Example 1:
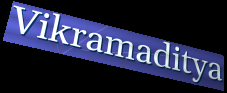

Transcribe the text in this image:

Vikramaditya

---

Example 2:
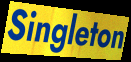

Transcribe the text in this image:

Singleton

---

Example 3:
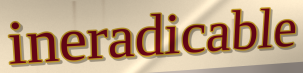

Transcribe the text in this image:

ineradicable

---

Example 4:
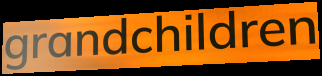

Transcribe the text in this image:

grandchildren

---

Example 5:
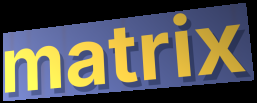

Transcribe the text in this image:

matrix